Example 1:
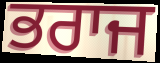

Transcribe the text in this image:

ਭਰਾਜ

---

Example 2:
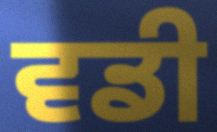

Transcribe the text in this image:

ਵਡੀ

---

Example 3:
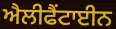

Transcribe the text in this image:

ਐਲੀਫੈਂਟਾਈਨ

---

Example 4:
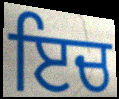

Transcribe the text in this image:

ਇਚ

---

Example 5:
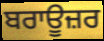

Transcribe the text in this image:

ਬਰਾਊਜ਼ਰ